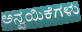
ಅನ್ವಯಿಕೆಗಳು